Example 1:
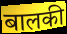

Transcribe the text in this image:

बालकी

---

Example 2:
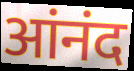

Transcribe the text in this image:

आंनंद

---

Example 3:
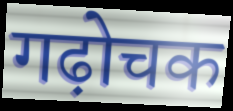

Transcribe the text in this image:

गढ़ोचक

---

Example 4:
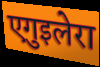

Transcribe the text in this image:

एगुइलेरा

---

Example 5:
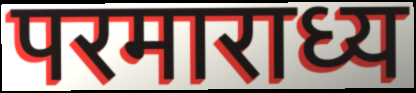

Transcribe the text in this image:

परमाराध्य